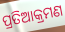
ପ୍ରତିଆକ୍ରମଣ